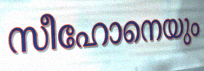
സീഹോനെയും